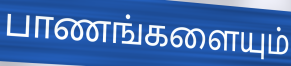
பாணங்களையும்